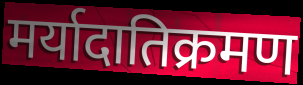
मर्यादातिक्रमण